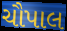
ચૌપાલ